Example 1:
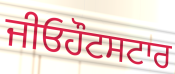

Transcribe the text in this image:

ਜੀਓਹੌਟਸਟਾਰ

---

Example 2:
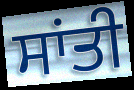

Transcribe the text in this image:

ਸਾਂਤੀ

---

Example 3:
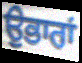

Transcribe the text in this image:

ਉਭਾਰਾਂ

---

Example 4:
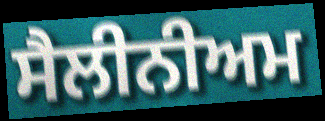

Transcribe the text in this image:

ਸੈਲੀਨੀਅਮ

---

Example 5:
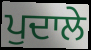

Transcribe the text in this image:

ਪੁਦਾਲੇ